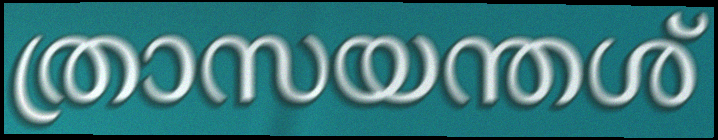
ത്രാസയന്തശ്